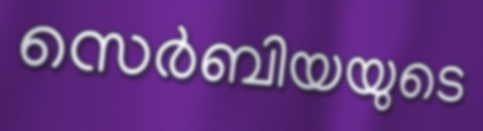
സെർബിയയുടെ